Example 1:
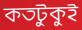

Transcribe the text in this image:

কতটুকুই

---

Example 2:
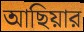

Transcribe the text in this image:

আছিয়ার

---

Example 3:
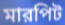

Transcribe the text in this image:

মারপিট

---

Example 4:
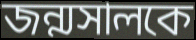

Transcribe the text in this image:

জন্মসালকে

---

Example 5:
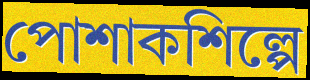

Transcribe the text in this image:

পোশাকশিল্পে